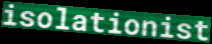
isolationist